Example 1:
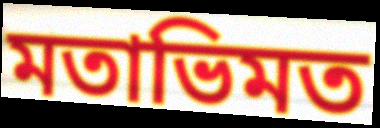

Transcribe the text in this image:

মতাভিমত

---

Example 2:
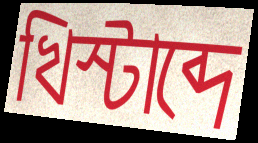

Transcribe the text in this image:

খিস্টাব্দে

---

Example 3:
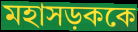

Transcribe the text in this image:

মহাসড়ককে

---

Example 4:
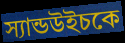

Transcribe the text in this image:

স্যান্ডউইচকে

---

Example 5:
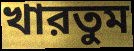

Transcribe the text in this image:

খারতুম